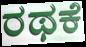
ರಥಕೆ